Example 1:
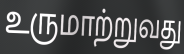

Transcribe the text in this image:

உருமாற்றுவது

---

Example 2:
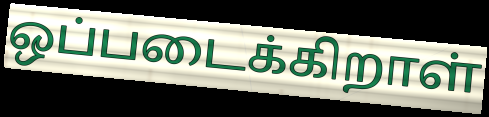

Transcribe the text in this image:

ஒப்படைக்கிறாள்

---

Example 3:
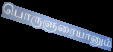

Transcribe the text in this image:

பொருளுரையானும்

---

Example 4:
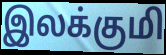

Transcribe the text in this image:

இலக்குமி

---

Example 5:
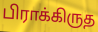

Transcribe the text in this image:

பிராக்கிருத